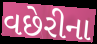
વછેરીના